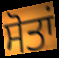
ਸੋਤਾਂ